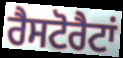
ਰੈਸਟੋਰੈਟਾਂ